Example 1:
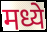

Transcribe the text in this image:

मध्ये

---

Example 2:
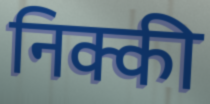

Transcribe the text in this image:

निक्की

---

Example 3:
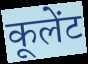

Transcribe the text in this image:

कूलेंट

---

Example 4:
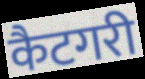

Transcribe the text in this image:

कैटगरी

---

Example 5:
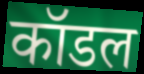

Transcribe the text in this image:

कॉडल